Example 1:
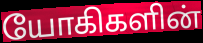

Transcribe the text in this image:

யோகிகளின்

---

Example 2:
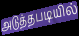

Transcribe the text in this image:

அடுத்தபடியில்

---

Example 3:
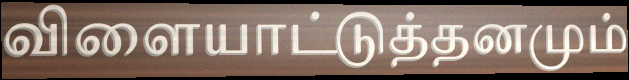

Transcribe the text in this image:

விளையாட்டுத்தனமும்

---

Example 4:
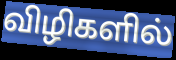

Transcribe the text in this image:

விழிகளில்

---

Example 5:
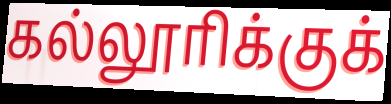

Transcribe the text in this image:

கல்லூரிக்குக்